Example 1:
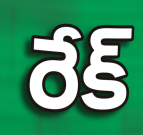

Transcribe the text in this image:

రేక్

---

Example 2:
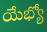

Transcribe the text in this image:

యేభ్యో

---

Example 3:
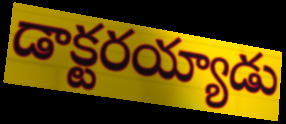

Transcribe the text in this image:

డాక్టరయ్యాడు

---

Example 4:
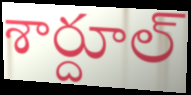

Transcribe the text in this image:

శార్దూల్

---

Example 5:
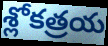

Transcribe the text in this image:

శ్లోకత్రయ